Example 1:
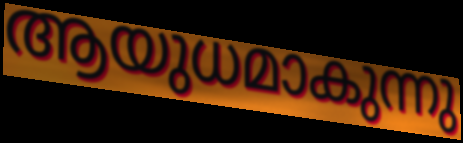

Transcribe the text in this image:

ആയുധമാകുന്നു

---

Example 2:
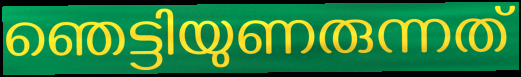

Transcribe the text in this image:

ഞെട്ടിയുണരുന്നത്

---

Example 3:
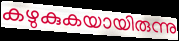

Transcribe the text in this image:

കഴുകുകയായിരുന്നു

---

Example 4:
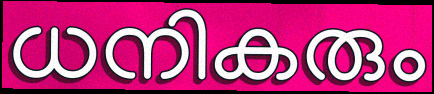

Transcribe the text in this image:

ധനികരും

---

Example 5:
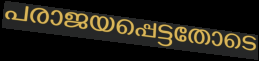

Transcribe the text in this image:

പരാജയപ്പെട്ടതോടെ